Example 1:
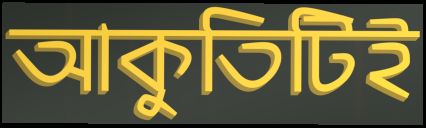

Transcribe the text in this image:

আকুতিটিই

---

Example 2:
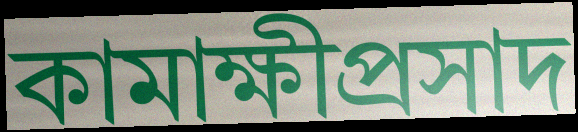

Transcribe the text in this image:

কামাক্ষীপ্রসাদ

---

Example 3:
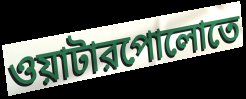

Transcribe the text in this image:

ওয়াটারপোলোতে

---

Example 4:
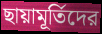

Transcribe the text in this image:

ছায়ামূর্তিদের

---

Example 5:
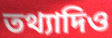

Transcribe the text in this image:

তথ্যাদিও